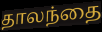
தாலந்தை